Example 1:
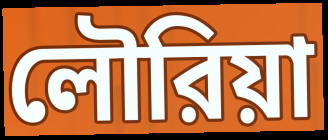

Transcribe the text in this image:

লৌরিয়া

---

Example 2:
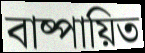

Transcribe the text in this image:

বাষ্পায়িত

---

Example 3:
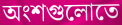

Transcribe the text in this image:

অংশগুলোতে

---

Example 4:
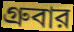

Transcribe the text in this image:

গ্রুবার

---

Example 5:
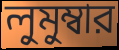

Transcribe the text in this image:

লুমুম্বার